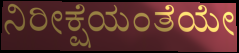
ನಿರೀಕ್ಷೆಯಂತೆಯೇ